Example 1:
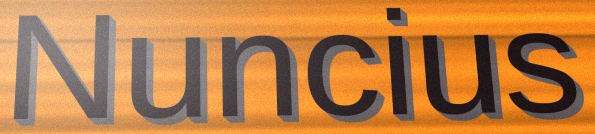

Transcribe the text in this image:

Nuncius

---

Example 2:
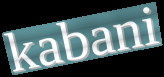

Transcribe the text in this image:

kabani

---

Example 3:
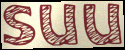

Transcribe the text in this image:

suu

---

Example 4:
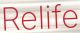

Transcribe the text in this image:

Relife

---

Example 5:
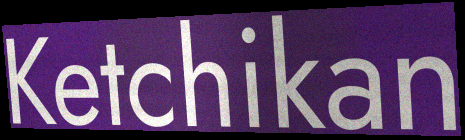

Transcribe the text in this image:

Ketchikan